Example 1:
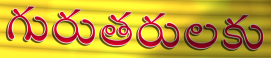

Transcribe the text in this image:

గురుతరులకు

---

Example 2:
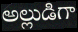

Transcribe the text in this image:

అల్లుడిగా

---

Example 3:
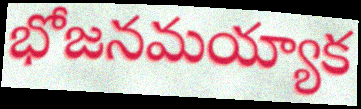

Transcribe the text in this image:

భోజనమయ్యాక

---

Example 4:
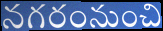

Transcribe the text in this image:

నగరంనుంచి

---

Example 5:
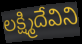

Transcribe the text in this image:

లక్ష్మిదేవిని